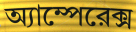
অ্যাম্পেরেক্স